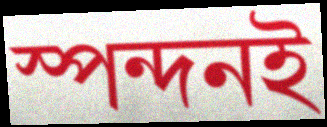
স্পন্দনই